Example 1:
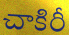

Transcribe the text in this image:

చాకిరీ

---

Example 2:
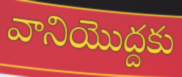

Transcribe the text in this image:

వానియొద్దకు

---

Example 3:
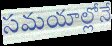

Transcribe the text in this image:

సమయాల్లోనే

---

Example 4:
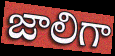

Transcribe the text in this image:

జాలిగా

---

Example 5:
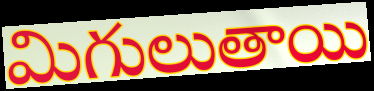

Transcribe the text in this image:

మిగులుతాయి